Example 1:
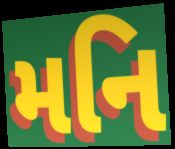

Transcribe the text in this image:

મનિ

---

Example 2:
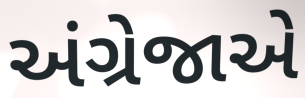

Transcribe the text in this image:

અંગ્રેજાએ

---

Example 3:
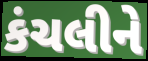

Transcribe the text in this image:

કંચલીને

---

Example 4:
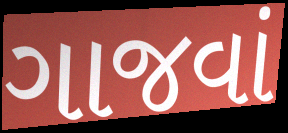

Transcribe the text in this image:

ગાજવાં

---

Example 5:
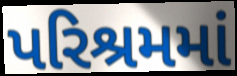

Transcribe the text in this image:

પરિશ્રમમાં